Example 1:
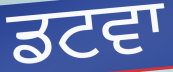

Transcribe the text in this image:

ਡਟਵਾ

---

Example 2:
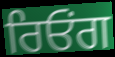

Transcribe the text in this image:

ਰਿਓਂਗ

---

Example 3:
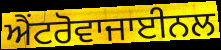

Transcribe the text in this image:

ਐਂਟਰੋਵਾਜਾਈਨਲ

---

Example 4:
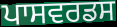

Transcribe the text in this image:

ਪਾਸਵਰਡਸ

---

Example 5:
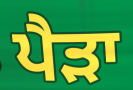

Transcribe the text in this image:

ਪੈੜਾ